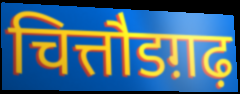
चित्तौडग़ढ़